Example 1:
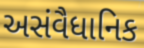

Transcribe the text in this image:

અસંવૈધાનિક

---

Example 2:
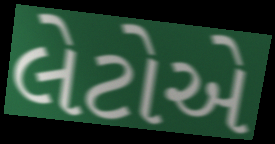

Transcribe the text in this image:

લેટોએ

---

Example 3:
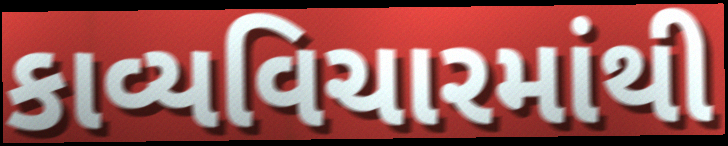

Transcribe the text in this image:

કાવ્યવિચારમાંથી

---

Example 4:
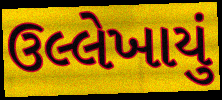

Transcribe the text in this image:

ઉલ્લેખાયું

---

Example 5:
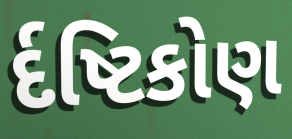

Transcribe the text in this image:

ર્દષ્ટિકોણ